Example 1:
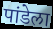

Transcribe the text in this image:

पांडेला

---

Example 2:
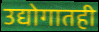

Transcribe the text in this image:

उद्योगातही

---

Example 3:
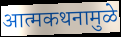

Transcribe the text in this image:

आत्मकथनामुळे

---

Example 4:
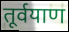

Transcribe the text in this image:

तूर्वयाण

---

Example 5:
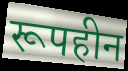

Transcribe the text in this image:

रूपहीन